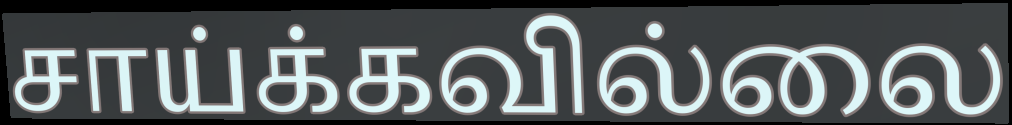
சாய்க்கவில்லை